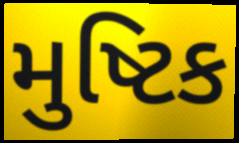
મુષ્ટિક